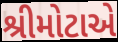
શ્રીમોટાએ